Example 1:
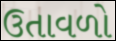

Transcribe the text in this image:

ઉતાવળો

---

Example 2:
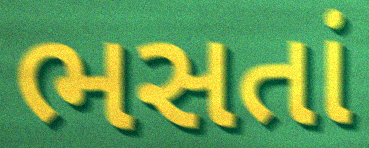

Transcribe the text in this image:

ભસતાં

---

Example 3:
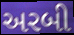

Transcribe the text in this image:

અરબી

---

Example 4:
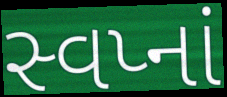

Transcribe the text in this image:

સ્વપ્નાં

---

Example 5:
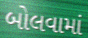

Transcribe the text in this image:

બોલવામાં